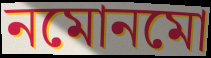
নমোনমো